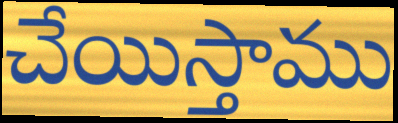
చేయిస్తాము